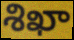
శిఖా